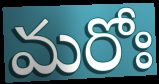
మరోః